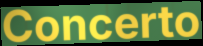
Concerto